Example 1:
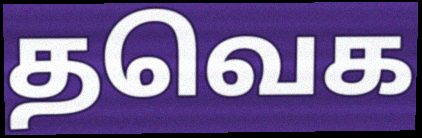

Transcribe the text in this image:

தவெக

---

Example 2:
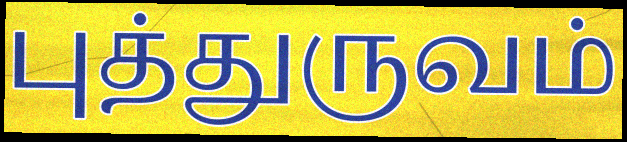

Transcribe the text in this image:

புத்துருவம்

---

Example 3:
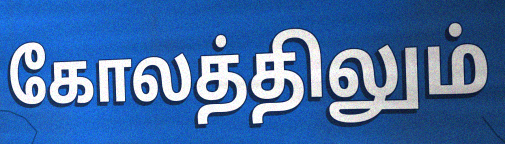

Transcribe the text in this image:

கோலத்திலும்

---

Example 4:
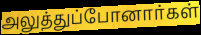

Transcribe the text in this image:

அலுத்துப்போனார்கள்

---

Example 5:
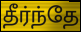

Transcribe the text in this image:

தீர்ந்தே